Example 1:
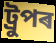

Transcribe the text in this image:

ট্ৰুপৰ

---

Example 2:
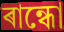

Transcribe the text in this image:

ৰান্ধো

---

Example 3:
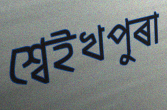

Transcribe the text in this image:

শ্বেইখপুৰা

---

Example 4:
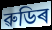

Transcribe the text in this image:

ৱুডিৰ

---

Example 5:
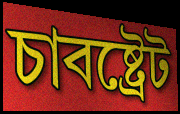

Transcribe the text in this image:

চাবষ্ট্ৰেট